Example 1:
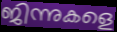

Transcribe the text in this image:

ജിന്നുകളെ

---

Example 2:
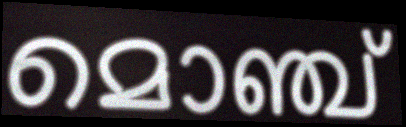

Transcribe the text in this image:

മൊഞ്ച്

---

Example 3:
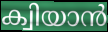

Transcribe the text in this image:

ക്വിയാൻ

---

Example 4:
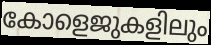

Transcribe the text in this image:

കോളെജുകളിലും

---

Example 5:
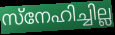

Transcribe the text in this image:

സ്നേഹിച്ചില്ല